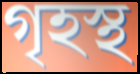
গৃহস্থ